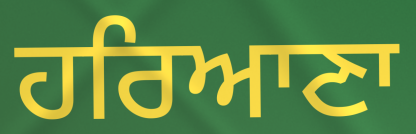
ਹਰਿਆਣਾ